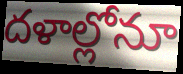
దళాల్లోనూ